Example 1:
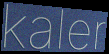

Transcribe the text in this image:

kaler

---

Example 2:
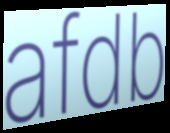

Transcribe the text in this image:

afdb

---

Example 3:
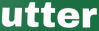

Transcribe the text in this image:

utter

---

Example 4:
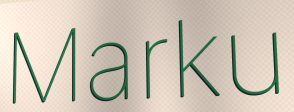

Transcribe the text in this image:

Marku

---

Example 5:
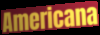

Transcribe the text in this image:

Americana